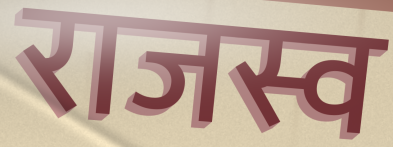
राजस्व